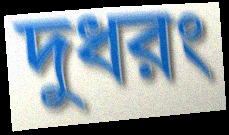
দুধরং